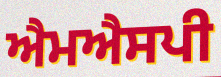
ਐਮਐਸਪੀ